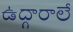
ఉద్గారాలే